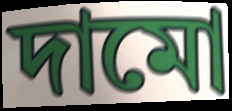
দামো